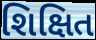
શિક્ષિત